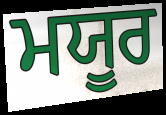
ਮਯੂਰ